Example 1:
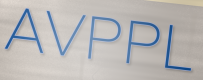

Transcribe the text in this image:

AVPPL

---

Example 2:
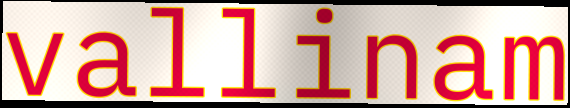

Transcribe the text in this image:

vallinam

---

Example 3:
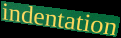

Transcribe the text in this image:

indentation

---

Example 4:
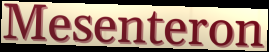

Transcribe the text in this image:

Mesenteron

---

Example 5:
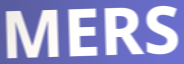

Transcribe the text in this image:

MERS